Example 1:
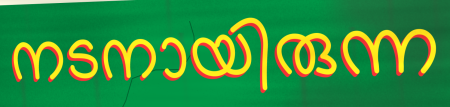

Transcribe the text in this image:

നടനായിരുന്ന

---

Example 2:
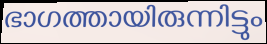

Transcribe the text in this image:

ഭാഗത്തായിരുന്നിട്ടും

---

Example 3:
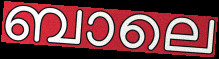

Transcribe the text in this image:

ബാലെ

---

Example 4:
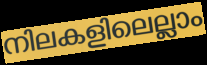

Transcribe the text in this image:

നിലകളിലെല്ലാം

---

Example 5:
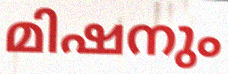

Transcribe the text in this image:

മിഷനും